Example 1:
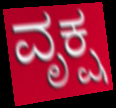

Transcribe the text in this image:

ವೃಕ್ಷ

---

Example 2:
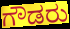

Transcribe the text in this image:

ಗೌಡರು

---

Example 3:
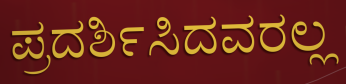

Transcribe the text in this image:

ಪ್ರದರ್ಶಿಸಿದವರಲ್ಲ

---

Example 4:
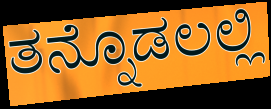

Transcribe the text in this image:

ತನ್ನೊಡಲಲ್ಲಿ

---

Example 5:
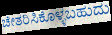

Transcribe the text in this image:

ಚೇತರಿಸಿಕೊಳ್ಳಬಹುದು